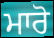
ਮਾਰੋ